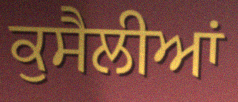
ਕੁਸੈਲੀਆਂ